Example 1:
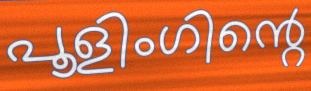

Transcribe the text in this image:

പൂളിംഗിന്റെ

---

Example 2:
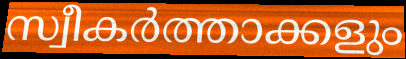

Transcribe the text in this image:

സ്വീകർത്താക്കളും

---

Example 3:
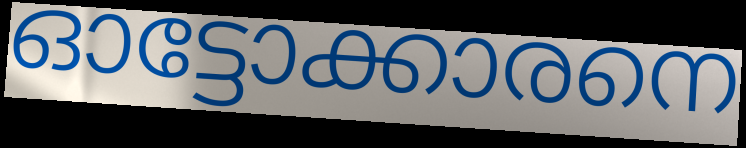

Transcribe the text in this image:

ഓട്ടോക്കാരനെ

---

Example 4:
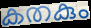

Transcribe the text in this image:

കതകും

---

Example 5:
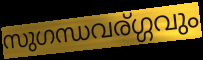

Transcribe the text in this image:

സുഗന്ധവര്ഗ്ഗവും